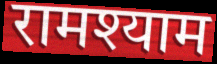
रामश्याम